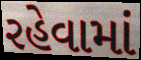
રહેવામાં